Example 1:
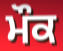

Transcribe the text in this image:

ਮੌਕ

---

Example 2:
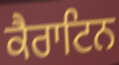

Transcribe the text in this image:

ਕੈਰਾਟਿਨ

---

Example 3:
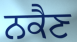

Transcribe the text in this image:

ਨਕੈਣ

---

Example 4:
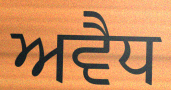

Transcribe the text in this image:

ਅਵੈਧ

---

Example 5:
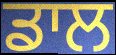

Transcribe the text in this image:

ਡਾਲ